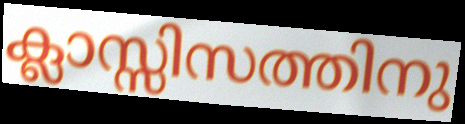
ക്ലാസ്സിസത്തിനു